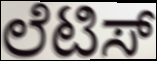
ಲೆಟಿಸ್